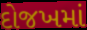
દોજખમાં